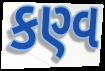
કણ્વ